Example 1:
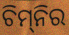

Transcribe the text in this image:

ଚିମ୍‌ନିର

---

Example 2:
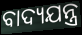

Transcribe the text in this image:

ବାଦ୍ୟଯନ୍ତ୍ର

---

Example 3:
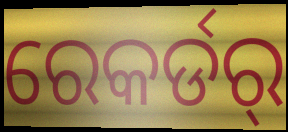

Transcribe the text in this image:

ରେକର୍ଡର୍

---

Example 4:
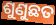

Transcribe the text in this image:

ଶୁଣୁଛତ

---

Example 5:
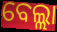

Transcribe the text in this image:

ବେଲ୍ଲା